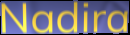
Nadira